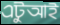
এটুআই